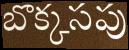
బొక్కసపు